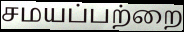
சமயப்பற்றை